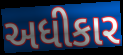
અધીકાર